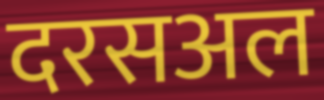
दरसअल